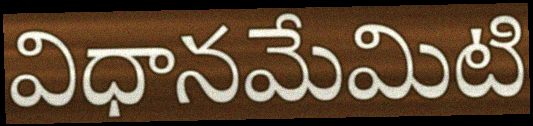
విధానమేమిటి